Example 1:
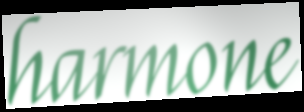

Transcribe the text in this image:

harmone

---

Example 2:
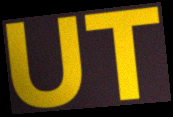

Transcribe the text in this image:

UT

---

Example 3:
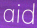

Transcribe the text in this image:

aid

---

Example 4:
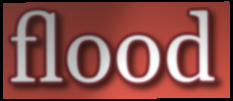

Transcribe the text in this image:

flood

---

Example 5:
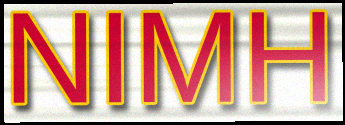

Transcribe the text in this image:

NIMH